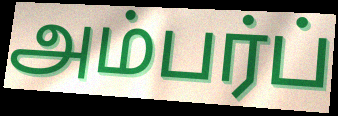
அம்பர்ப்